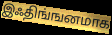
இஃதிங்ஙனமாக